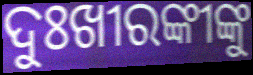
ଦୁଃଖୀରଙ୍କୀଙ୍କୁ